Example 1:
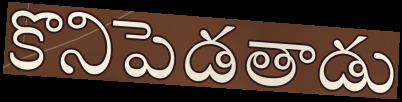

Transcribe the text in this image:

కొనిపెడతాడు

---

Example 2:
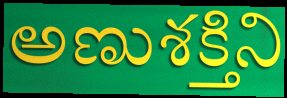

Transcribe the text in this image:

అణుశక్తిని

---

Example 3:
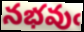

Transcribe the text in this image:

నభవుఁ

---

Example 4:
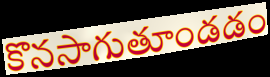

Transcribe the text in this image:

కొనసాగుతూండడం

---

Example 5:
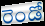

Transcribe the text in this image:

రెండో